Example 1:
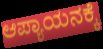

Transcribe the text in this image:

ಆಪ್ಯಾಯನಕ್ಕೆ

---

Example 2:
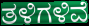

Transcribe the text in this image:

ತಳಿಗಳಿವೆ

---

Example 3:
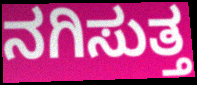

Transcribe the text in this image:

ನಗಿಸುತ್ತ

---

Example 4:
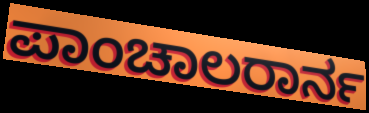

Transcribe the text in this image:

ಪಾಂಚಾಲರಾರ್ನ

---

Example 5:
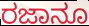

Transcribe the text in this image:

ರಜಾನೂ